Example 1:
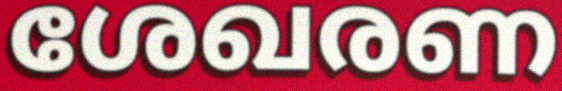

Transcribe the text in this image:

ശേഖരണ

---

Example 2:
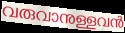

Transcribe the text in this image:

വരുവാനുള്ളവൻ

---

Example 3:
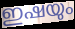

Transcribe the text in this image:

ഇഷയും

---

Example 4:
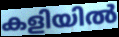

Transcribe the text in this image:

കളിയിൽ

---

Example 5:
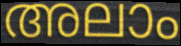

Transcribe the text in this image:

അലാം